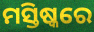
ମସ୍ତିଷ୍କରେ